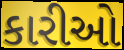
કારીઓ